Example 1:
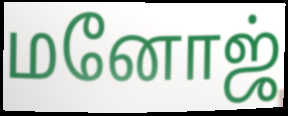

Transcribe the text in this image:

மனோஜ்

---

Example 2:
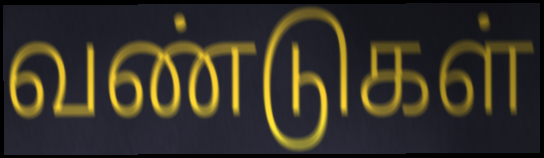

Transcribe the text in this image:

வண்டுகள்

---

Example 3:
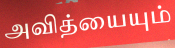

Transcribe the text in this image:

அவித்யையும்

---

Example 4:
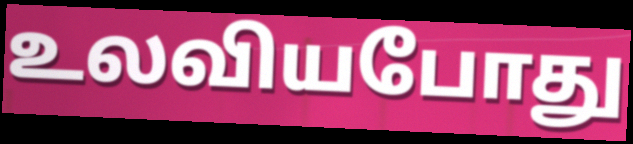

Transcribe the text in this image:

உலவியபோது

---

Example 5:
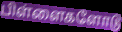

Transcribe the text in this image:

பிள்ளைகளோடு